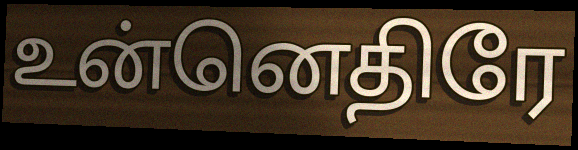
உன்னெதிரே